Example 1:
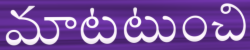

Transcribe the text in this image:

మాటటుంచి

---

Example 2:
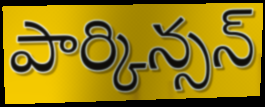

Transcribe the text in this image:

పార్కిన్సన్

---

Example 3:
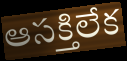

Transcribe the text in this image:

ఆసక్తిలేక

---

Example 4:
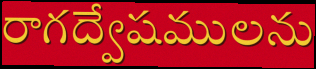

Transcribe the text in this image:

రాగద్వేషములను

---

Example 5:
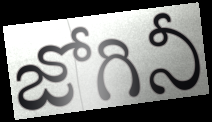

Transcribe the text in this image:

జోగినీ